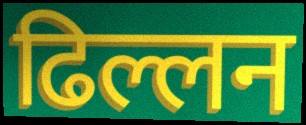
ढिल्लन